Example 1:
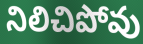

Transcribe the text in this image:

నిలిచిపోవు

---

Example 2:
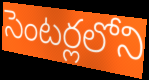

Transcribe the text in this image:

సెంటర్లలోని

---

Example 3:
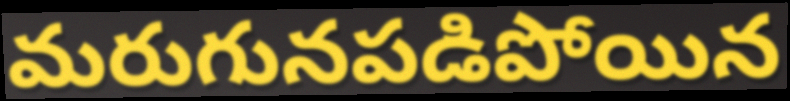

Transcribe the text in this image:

మరుగునపడిపోయిన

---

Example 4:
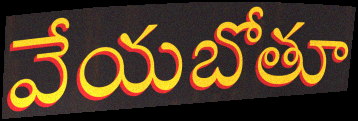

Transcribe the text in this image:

వేయబోతూ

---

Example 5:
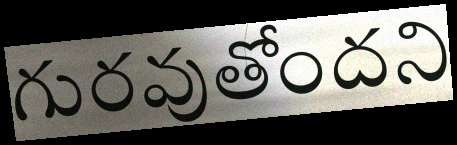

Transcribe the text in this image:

గురవుతోందని